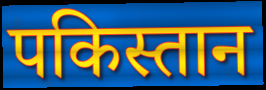
पकिस्तान